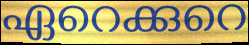
ഏറെക്കുറെ